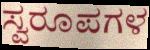
ಸ್ವರೂಪಗಳ